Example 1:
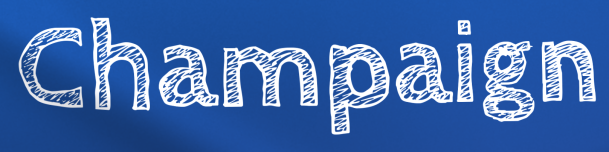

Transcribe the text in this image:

Champaign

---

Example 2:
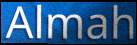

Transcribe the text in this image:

Almah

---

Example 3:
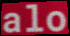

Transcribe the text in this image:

alo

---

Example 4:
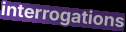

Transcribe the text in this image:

interrogations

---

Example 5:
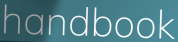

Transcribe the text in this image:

handbook